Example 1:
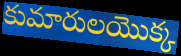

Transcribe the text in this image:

కుమారులయొక్క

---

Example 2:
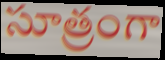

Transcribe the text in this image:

సూత్రంగా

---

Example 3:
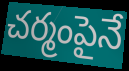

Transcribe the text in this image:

చర్మంపైనే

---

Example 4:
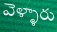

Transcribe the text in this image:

వెళ్ళారు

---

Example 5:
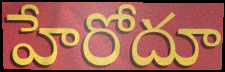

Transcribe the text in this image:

హేరోదూ